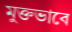
মুক্তভাবে